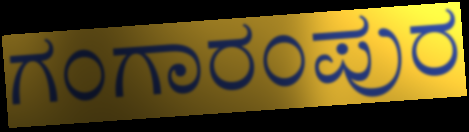
ಗಂಗಾರಂಪುರ